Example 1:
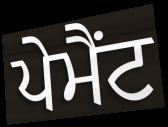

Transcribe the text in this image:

ਪੇਮੈਂਟ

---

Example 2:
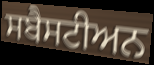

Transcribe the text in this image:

ਸਬੈਸਟੀਅਨ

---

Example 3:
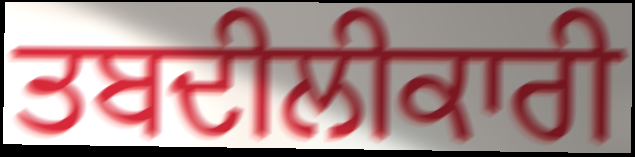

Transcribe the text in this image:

ਤਬਦੀਲੀਕਾਰੀ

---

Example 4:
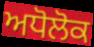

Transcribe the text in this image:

ਅਧੋਲੋਕ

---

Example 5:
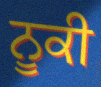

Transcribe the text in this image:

ਨੂਕੀ